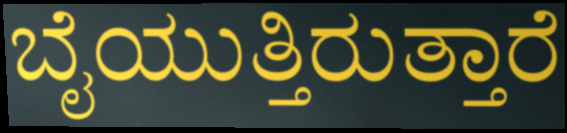
ಬೈಯುತ್ತಿರುತ್ತಾರೆ